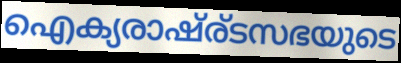
ഐക്യരാഷ്ര്ടസഭയുടെ